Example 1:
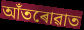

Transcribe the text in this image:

আঁতৰোৱাত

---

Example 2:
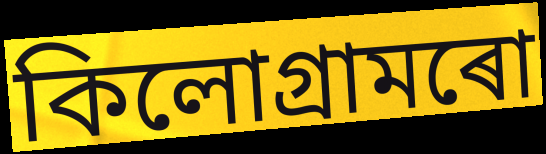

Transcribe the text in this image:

কিলোগ্ৰামৰো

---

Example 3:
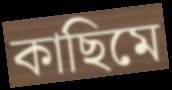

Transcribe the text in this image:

কাছিমে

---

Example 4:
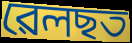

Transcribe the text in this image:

ৱেলছত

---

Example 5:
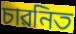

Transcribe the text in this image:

চাৱনিত